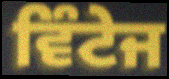
ਵਿੰਟੇਜ